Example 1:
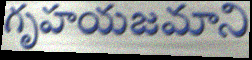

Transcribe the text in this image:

గృహయజమాని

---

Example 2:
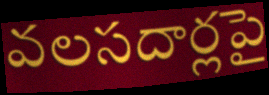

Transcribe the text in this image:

వలసదార్లపై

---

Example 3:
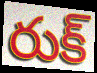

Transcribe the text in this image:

రుక్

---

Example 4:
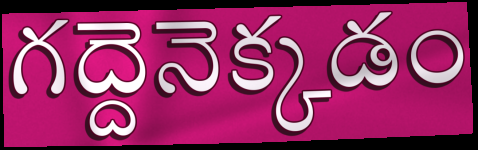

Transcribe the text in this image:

గద్దెనెక్కడం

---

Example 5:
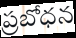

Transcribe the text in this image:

ప్రబోధన